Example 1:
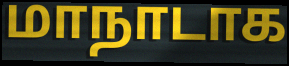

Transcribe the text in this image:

மாநாடாக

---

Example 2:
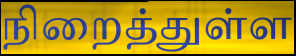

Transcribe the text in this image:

நிறைத்துள்ள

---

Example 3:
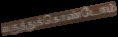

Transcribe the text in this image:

வகுத்துக்கொண்டோம்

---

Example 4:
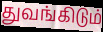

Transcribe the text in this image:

துவங்கிடும்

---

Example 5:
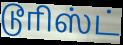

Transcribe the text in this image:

டூரிஸ்ட்